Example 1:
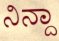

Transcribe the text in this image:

ನಿನ್ದಾ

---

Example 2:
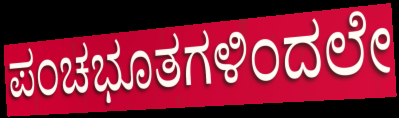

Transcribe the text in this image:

ಪಂಚಭೂತಗಳಿಂದಲೇ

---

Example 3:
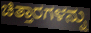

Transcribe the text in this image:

ಚಿತ್ತಾರಗಳನ್ನು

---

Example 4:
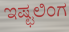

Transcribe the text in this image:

ಇಷ್ಟಲಿಂಗ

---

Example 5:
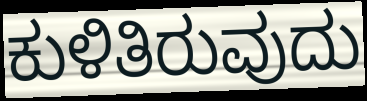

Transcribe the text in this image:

ಕುಳಿತಿರುವುದು